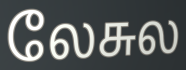
லேசுல